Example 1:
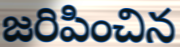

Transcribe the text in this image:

జరిపించిన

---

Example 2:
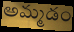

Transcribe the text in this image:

అమ్మడం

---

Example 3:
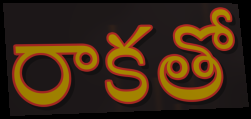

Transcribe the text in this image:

రాకతో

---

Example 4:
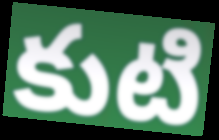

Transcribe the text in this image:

కుటి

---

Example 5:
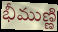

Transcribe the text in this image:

భీముణ్ణి